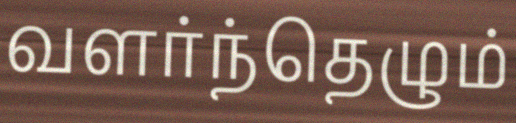
வளர்ந்தெழும்